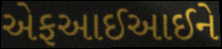
એફઆઈઆઈને